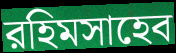
রহিমসাহেব